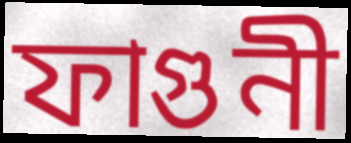
ফাগুনী